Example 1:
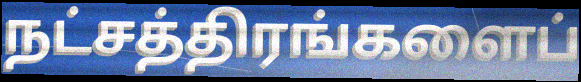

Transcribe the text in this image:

நட்சத்திரங்களைப்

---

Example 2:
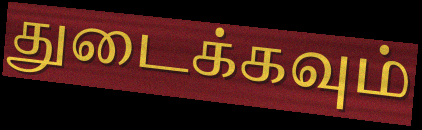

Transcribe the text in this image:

துடைக்கவும்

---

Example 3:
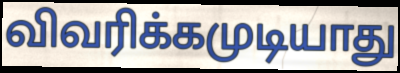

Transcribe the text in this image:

விவரிக்கமுடியாது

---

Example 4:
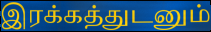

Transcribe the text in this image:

இரக்கத்துடனும்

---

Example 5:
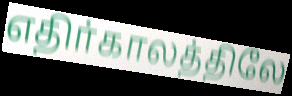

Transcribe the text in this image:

எதிர்காலத்திலே